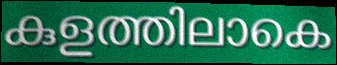
കുളത്തിലാകെ